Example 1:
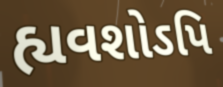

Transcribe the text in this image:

હ્યવશોઽપિ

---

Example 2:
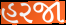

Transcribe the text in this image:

હરજા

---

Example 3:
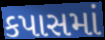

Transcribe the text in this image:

કપાસમાં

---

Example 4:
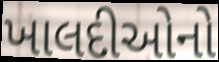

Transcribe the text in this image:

ખાલદીઓનો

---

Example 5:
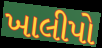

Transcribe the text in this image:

ખાલીપો